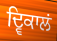
ਦ੍ਵਿਕਾਲਂ